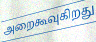
அறைகூவுகிறது